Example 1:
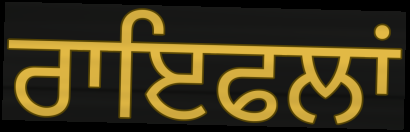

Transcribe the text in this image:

ਰਾਇਫਲਾਂ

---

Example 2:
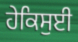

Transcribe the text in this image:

ਹੇਕਿਸੁਈ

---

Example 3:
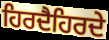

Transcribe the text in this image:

ਹਿਰਦੈਹਿਰਦੇ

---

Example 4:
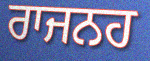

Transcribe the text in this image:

ਰਾਜਨਹ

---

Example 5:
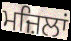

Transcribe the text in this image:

ਮਜ਼ਿਲਾਂ